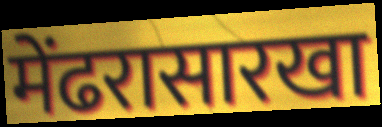
मेंढरासारखा